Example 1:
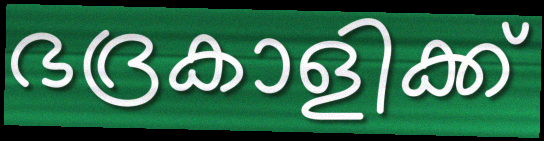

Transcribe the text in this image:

ഭദ്രകാളിക്ക്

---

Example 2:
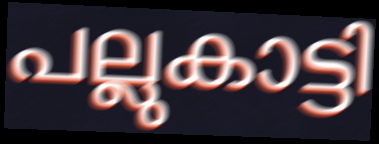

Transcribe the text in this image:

പല്ലുകാട്ടി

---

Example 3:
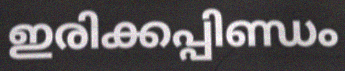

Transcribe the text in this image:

ഇരിക്കപ്പിണ്ഡം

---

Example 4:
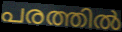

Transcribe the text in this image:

പരത്തിൽ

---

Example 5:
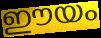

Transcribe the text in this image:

ഈയം